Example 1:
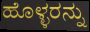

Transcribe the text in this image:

ಹೊಳ್ಳರನ್ನು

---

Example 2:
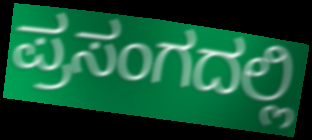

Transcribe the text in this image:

ಪ್ರಸಂಗದಲ್ಲಿ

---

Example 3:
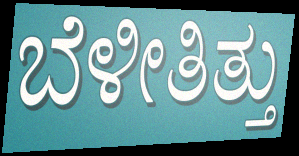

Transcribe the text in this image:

ಬೆಳೀತಿತ್ತು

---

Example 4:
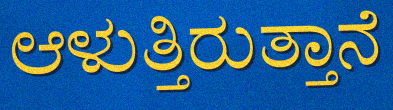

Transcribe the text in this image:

ಆಳುತ್ತಿರುತ್ತಾನೆ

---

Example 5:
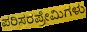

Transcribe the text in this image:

ಪರಿಸರಪ್ರೇಮಿಗಳು